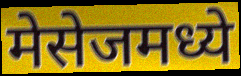
मेसेजमध्ये